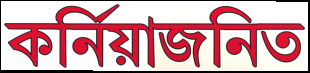
কর্নিয়াজনিত